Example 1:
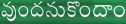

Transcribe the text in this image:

వుందనుకొందాం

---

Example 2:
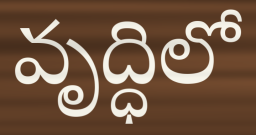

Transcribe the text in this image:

వృద్ధిలో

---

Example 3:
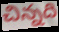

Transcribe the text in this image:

చిన్నది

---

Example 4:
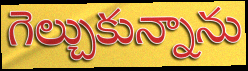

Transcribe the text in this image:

గెల్చుకున్నాను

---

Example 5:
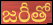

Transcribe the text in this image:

జరీతో